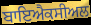
ਬਾਇਐਕਸੀਅਲ